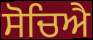
ਸੋਚਿਐ